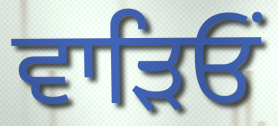
ਵਾੜਿਓਂ